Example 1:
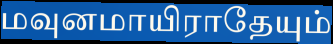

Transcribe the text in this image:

மவுனமாயிராதேயும்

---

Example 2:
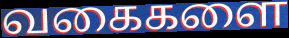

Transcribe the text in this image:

வகைகளை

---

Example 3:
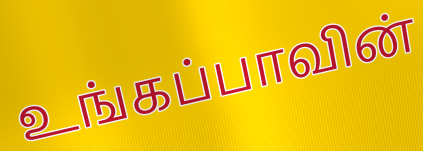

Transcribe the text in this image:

உங்கப்பாவின்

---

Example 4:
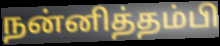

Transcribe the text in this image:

நன்னித்தம்பி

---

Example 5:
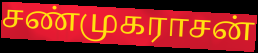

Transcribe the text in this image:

சண்முகராசன்